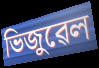
ভিজুৱেল